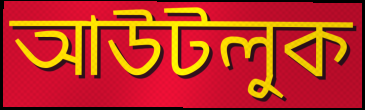
আউটলুক